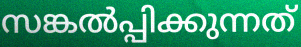
സങ്കൽപ്പിക്കുന്നത്